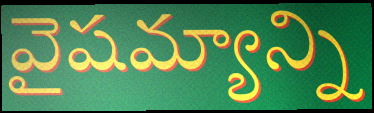
వైషమ్యాన్ని